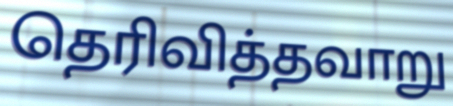
தெரிவித்தவாறு